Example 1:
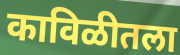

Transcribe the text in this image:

काविळीतला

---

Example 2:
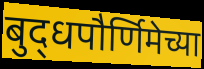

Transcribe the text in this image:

बुद्धपौर्णिमेच्या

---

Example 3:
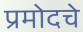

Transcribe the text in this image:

प्रमोदचे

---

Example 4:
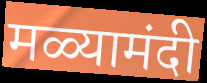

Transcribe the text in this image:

मळ्यामंदी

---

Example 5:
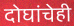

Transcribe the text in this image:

दोघांचेही